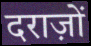
दराज़ों